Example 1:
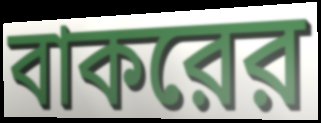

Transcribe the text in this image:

বাকরের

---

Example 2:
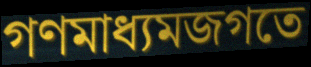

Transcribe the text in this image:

গণমাধ্যমজগতে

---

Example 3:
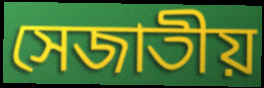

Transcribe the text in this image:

সেজাতীয়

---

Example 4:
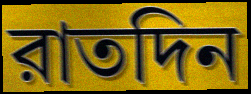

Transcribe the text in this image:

রাতদিন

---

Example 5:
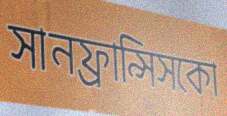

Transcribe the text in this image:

সানফ্রান্সিসকো